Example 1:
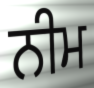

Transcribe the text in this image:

ਨੀਮ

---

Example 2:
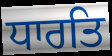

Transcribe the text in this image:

ਧਾਰਤਿ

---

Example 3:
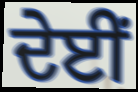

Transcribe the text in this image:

ਦੇਈਂ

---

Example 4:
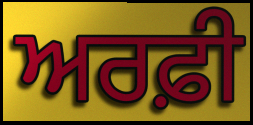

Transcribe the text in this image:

ਅਰਫ਼ੀ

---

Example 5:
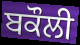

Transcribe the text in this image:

ਬਕੌਲੀ